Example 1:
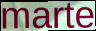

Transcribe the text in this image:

marte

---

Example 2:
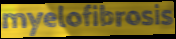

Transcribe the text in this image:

myelofibrosis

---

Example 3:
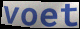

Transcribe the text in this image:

voet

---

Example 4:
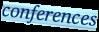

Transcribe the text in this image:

conferences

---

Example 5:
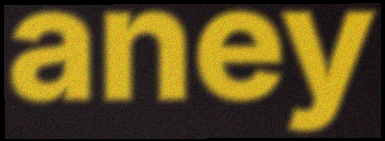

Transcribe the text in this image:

aney